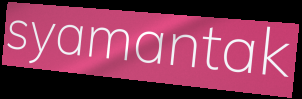
syamantak